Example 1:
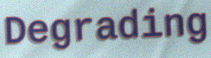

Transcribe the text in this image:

Degrading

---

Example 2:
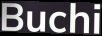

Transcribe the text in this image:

Buchi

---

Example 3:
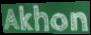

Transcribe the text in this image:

Akhon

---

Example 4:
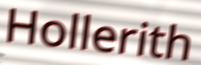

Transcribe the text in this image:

Hollerith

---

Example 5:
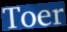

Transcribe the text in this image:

Toer